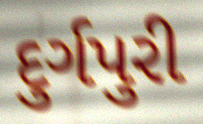
દુર્ગપુરી